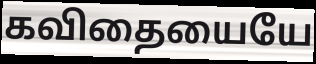
கவிதையையே